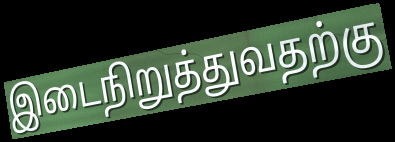
இடைநிறுத்துவதற்கு